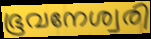
ഭൂവനേശ്വരി